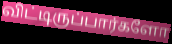
விட்டிருப்பார்களோ